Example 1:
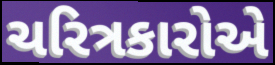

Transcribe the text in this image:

ચરિત્રકારોએ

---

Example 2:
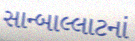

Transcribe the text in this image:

સાન્બાલ્લાટનાં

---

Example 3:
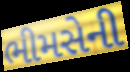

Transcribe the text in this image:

ભીમસેની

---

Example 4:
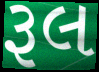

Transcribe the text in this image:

રૂલ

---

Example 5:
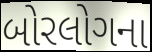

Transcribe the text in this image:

બોરલોગના